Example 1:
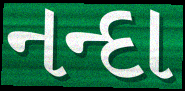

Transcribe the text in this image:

નન્દા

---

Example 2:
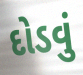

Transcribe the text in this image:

દોડવું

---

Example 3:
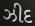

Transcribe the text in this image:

ઝીદ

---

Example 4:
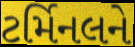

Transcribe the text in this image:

ટર્મિનલને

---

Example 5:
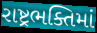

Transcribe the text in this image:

રાષ્ટ્રભક્તિમાં